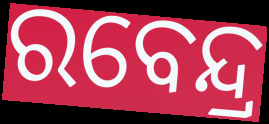
ରବେନ୍ଦ୍ର